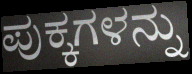
ಪುಕ್ಕಗಳನ್ನು